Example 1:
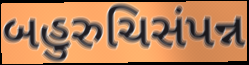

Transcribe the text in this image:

બહુરુચિસંપન્ન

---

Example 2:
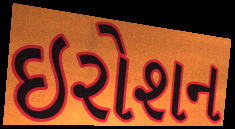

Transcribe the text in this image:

ઇરોશન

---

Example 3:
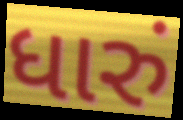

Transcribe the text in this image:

ધારું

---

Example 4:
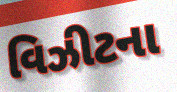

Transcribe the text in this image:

વિઝીટના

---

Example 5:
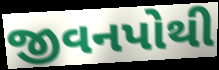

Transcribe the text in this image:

જીવનપોથી